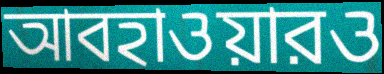
আবহাওয়ারও